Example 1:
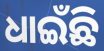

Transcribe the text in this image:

ଧାଇଁଛି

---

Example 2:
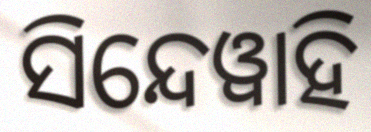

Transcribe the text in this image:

ସିନ୍ଦେୱାହି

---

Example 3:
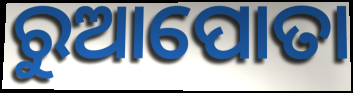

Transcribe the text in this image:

ରୁଆପୋତା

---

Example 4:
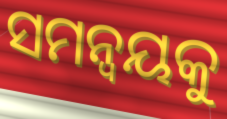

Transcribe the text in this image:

ସମନ୍ବୟକୁ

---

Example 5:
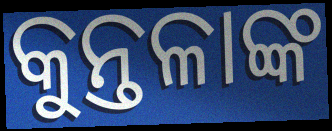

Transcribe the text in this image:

କୁନ୍ତଳାଙ୍କ